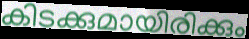
കിടക്കുമായിരിക്കും